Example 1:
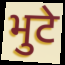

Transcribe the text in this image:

भुटे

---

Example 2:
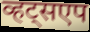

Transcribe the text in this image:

व्हट्सएप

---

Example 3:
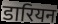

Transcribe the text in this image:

डारियन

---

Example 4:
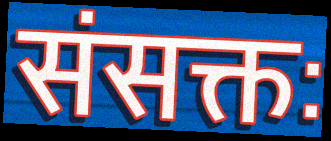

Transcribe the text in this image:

संसक्तः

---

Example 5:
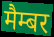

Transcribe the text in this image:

मैम्बर